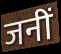
जनीं